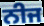
ਨੀਜ